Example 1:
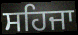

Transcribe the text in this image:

ਸਹਿਜਾ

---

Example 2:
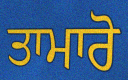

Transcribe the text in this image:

ਤਾਮਾਰੋ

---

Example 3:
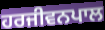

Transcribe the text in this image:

ਹਰਜੀਵਨਪਾਲ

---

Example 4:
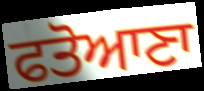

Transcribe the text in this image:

ਫਤੋਆਣਾ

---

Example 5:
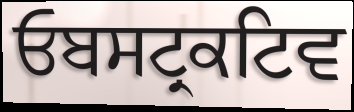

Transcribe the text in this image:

ਓਬਸਟ੍ਰਕਟਿਵ